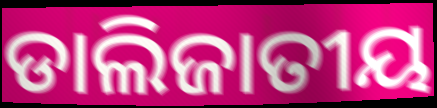
ଡାଲିଜାତୀୟ